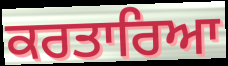
ਕਰਤਾਰਿਆ